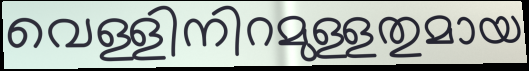
വെള്ളിനിറമുള്ളതുമായ